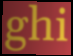
ghi